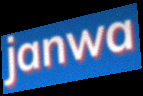
janwa